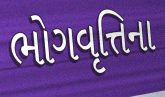
ભોગવૃત્તિના